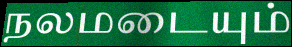
நலமடையும்